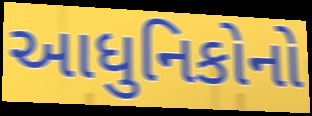
આધુનિકોનો